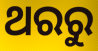
ଥରରୁ